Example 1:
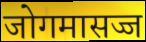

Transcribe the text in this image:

जोगमासज्ज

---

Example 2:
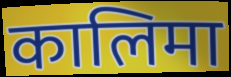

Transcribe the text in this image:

कालिमा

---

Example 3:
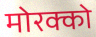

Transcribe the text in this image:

मोरक्को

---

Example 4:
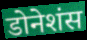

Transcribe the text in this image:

डोनेशंस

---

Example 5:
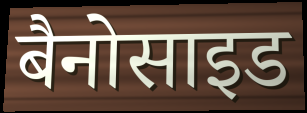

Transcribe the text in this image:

बैनोसाइड